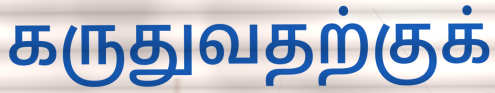
கருதுவதற்குக்